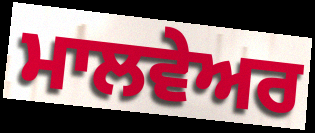
ਮਾਲਵੇਅਰ